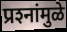
प्रश्‍नांमुळे